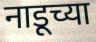
नाडूच्या